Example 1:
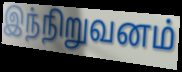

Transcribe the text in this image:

இந்நிறுவனம்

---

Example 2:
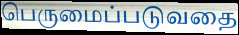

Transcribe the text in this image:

பெருமைப்படுவதை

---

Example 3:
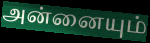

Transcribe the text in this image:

அன்னையும்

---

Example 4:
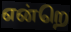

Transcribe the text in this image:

என்றெ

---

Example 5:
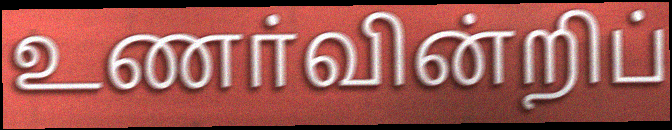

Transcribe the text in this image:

உணர்வின்றிப்